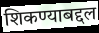
शिकण्याबद्दल